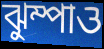
ঝুম্পাও